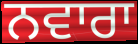
ਨਵਾਰਾ